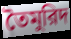
তৈমুরিদ